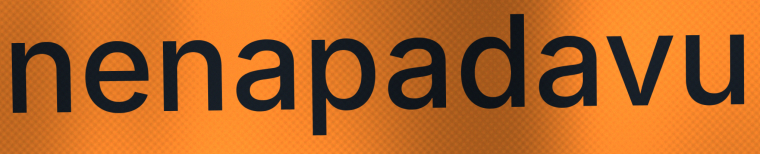
nenapadavu